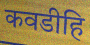
कवडीहि